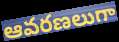
ఆవరణలుగా